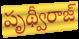
పృథ్వీరాజ్